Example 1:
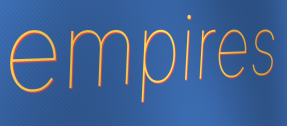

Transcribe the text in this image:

empires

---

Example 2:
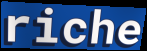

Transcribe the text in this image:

riche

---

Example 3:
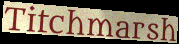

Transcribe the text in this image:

Titchmarsh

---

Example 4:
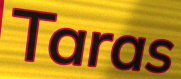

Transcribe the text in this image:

Taras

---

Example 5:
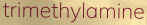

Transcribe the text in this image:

trimethylamine